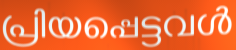
പ്രിയപ്പെട്ടവൾ